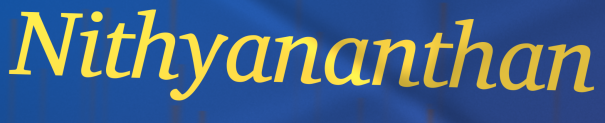
Nithyananthan